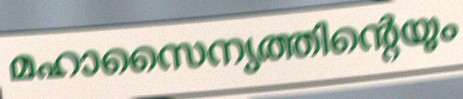
മഹാസൈന്യത്തിന്റെയും